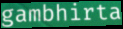
gambhirta